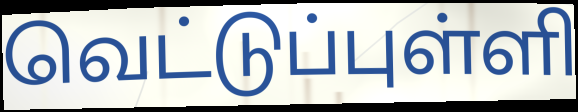
வெட்டுப்புள்ளி